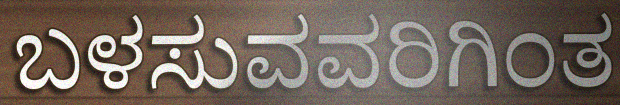
ಬಳಸುವವರಿಗಿಂತ